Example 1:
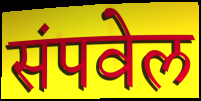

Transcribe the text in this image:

संपवेल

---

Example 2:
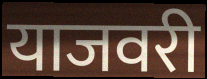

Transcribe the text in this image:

याजवरी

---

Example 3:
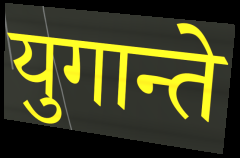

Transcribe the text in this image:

युगान्ते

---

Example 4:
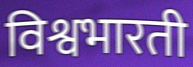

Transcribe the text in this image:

विश्वभारती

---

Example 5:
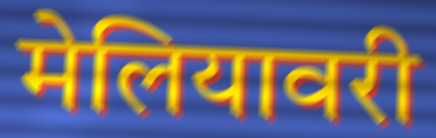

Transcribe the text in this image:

मेलियावरी